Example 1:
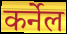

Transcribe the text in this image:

कर्नेल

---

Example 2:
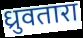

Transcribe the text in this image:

ध्रुवतारा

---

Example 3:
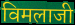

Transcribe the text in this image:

विमलाजी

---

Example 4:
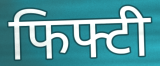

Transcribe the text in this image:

फिफ्टी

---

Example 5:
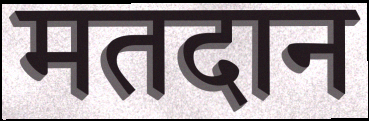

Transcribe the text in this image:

मतदान